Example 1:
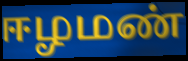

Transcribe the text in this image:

ஈழமண்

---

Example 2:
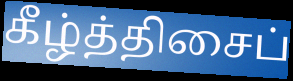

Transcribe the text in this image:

கீழ்த்திசைப்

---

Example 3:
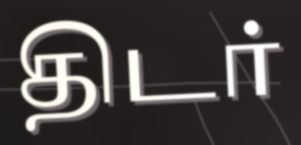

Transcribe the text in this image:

திடர்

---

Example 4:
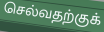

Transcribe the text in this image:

செல்வதற்குக்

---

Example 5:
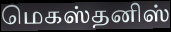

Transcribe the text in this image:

மெகஸ்தனிஸ்